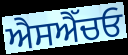
ਐਸਐੱਚਓ